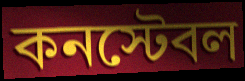
কনস্টেবল